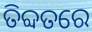
ତିବ୍ଦତରେ